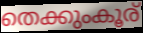
തെക്കുംകൂര്